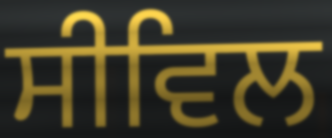
ਸੀਵਿਲ